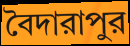
বৈদারাপুর